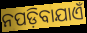
ନପଡ଼ିବାଯାଏଁ